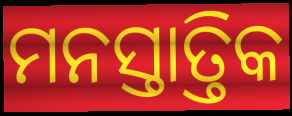
ମନସ୍ତାତ୍ତିକ